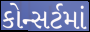
કોન્સર્ટમાં